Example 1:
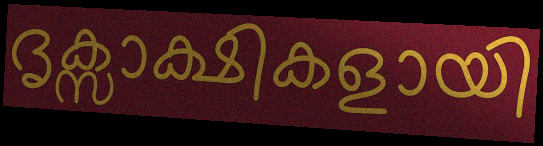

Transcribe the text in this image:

ദൃക്സാക്ഷികളായി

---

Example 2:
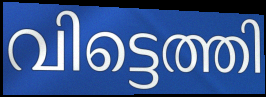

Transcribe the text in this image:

വിട്ടെത്തി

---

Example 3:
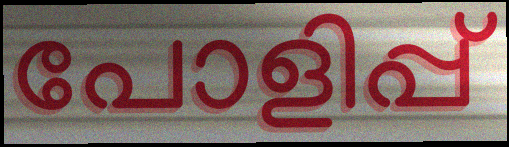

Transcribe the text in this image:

പോളിപ്പ്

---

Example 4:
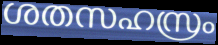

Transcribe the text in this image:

ശതസഹസ്രം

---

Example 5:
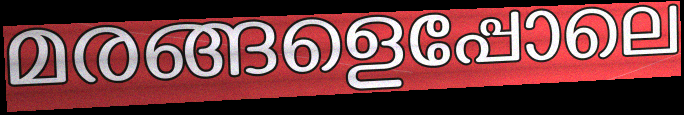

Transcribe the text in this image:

മരങ്ങളെപ്പോലെ